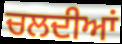
ਚਲਦੀਆਂ